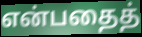
என்பதைத்